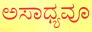
ಅಸಾಧ್ಯವೂ